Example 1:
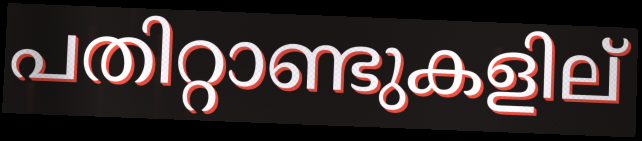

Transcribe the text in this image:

പതിറ്റാണ്ടുകളില്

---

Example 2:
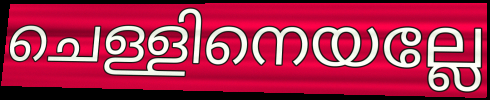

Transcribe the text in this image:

ചെള്ളിനെയല്ലേ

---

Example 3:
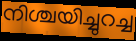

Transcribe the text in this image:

നിശ്ചയിച്ചുറച്ച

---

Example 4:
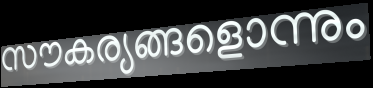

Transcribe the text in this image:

സൗകര്യങ്ങളൊന്നും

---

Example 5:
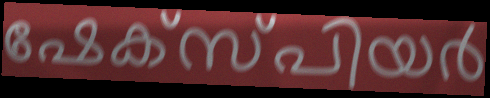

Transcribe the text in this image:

ഷേക്സ്പിയർ